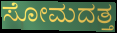
ಸೋಮದತ್ತ